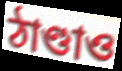
ঠাণ্ডাও